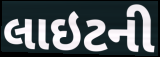
લાઇટની